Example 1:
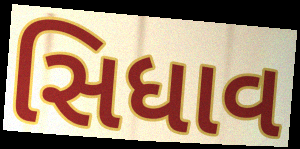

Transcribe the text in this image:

સિધાવ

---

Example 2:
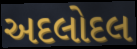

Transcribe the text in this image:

અદલોદલ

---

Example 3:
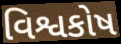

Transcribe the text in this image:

વિશ્વકોષ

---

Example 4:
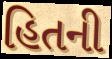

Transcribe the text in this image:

હિતની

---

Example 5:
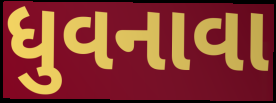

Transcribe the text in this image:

ધુવનાવા